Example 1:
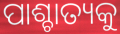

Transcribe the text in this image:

ପାଶ୍ଚାତ୍ୟକୁ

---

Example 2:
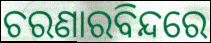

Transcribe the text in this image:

ଚରଣାରବିନ୍ଦରେ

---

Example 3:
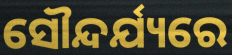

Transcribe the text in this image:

ସୌନ୍ଦର୍ଯ୍ୟରେ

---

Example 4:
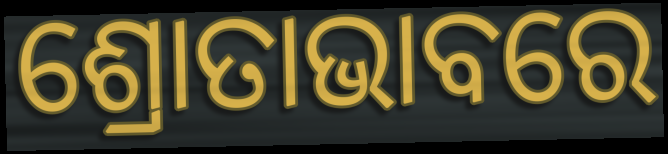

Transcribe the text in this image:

ଶ୍ରୋତାଭାବରେ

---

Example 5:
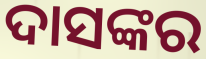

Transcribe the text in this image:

ଦାସଙ୍କର